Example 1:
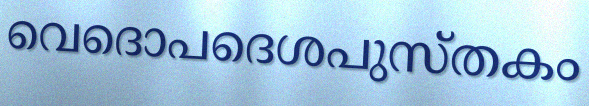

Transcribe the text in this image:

വെദൊപദെശപുസ്തകം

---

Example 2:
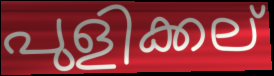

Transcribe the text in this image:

പുളിക്കല്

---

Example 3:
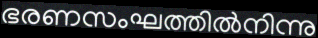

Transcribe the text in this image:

ഭരണസംഘത്തിൽനിന്നു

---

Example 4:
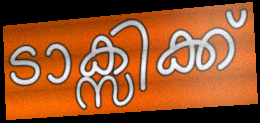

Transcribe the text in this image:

ടാക്സിക്ക്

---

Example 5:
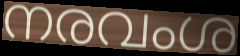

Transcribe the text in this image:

നരവംശ